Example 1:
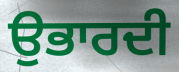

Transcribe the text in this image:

ਉਭਾਰਦੀ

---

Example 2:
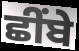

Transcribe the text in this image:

ਛੀਂਬੇ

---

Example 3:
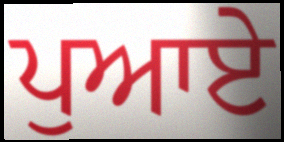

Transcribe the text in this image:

ਪੁਆਏ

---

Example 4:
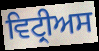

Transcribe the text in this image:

ਵਿਟ੍ਰੀਅਸ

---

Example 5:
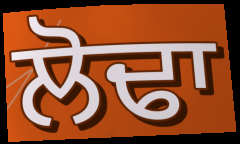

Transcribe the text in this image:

ਲੋਢਾ